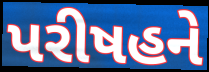
પરીષહને